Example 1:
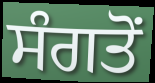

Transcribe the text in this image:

ਸੰਗਤੋਂ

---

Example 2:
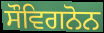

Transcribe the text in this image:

ਸੌਵਿਗਨੋਨ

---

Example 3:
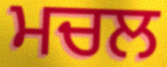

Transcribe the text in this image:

ਮਚਲ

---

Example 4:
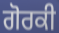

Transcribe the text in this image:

ਗੋਰਕੀ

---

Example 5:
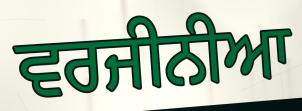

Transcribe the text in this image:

ਵਰਜੀਨੀਆ